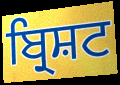
ਬ੍ਰਿਸ਼ਟ